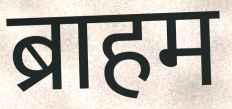
ब्राहम